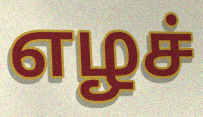
எழச்